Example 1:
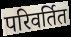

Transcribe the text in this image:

परिवर्तित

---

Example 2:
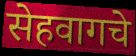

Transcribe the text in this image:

सेहवागचे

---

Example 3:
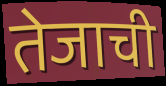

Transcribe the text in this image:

तेजाची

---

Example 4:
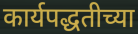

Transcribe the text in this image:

कार्यपद्धतीच्या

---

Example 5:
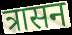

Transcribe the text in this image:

त्रासन